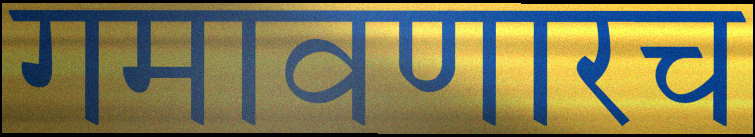
गमावणारच